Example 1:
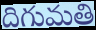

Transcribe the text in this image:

దిగుమతి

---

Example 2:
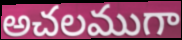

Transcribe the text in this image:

అచలముగా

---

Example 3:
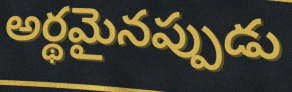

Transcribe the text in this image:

అర్థమైనప్పుడు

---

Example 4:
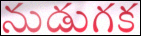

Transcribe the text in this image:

నుడుగక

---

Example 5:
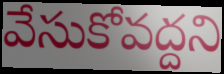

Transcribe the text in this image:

వేసుకోవద్దని